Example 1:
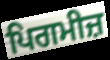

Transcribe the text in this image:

ਪਿਗਮੀਜ਼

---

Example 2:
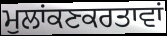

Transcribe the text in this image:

ਮੁਲਾਂਕਣਕਰਤਾਵਾਂ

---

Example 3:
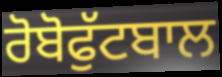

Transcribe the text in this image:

ਰੋਬੋਫੁੱਟਬਾਲ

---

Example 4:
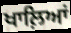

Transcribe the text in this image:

ਖਾਲ਼ਿਆਂ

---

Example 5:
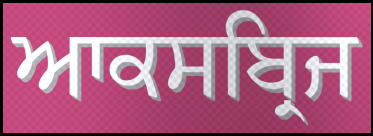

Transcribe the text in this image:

ਆਕਸਬ੍ਰਿਜ